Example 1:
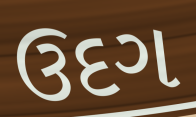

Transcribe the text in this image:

ઉદગ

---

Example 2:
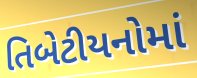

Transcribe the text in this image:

તિબેટીયનોમાં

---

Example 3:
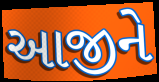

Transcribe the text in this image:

આજીને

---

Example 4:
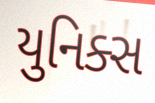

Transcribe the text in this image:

યુનિક્સ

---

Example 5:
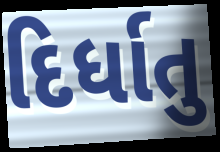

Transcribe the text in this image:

દિર્ધાતુ